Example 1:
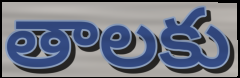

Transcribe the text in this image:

తాలకు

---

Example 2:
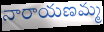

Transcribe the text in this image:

నారాయణమ్మ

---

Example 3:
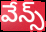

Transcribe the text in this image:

వేన్స్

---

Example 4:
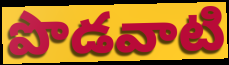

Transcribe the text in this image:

పొడవాటి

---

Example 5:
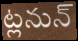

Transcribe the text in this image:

ట్లనున్